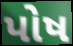
પોષ